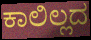
ಕಾಲಿಲ್ಲದ